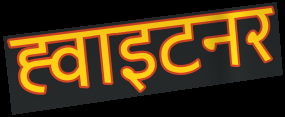
ह्वाइटनर